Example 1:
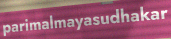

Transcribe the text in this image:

parimalmayasudhakar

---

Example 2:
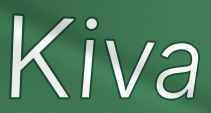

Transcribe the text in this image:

Kiva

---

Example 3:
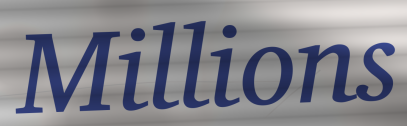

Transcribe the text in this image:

Millions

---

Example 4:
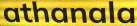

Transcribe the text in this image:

athanala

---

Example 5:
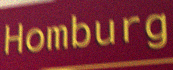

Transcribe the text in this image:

Homburg